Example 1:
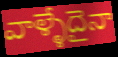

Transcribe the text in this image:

వాళ్ళేదైనా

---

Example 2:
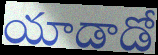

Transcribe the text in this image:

యాడాడో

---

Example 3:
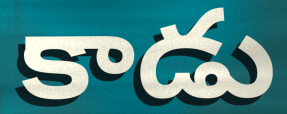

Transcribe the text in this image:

కాడు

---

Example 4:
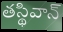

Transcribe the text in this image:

తస్థివాన్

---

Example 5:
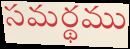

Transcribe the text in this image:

సమర్థము